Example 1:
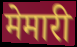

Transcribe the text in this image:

मेमारी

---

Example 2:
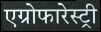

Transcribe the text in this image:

एग्रोफारेस्ट्री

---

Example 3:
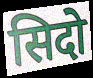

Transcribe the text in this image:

सिदो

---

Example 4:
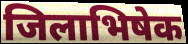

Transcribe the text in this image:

जिलाभिषेक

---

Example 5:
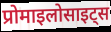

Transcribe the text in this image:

प्रोमाइलोसाइट्स